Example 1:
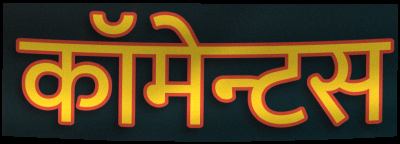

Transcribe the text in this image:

कॉमेन्टस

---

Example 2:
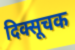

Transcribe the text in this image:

दिक्सूचक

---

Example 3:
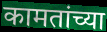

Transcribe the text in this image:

कामतांच्या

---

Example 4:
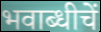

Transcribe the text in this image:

भवाब्धीचें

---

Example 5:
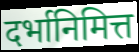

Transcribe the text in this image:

दर्भानिमित्त